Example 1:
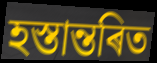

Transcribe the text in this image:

হস্তান্তৰিত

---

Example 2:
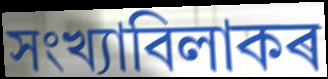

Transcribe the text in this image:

সংখ্যাবিলাকৰ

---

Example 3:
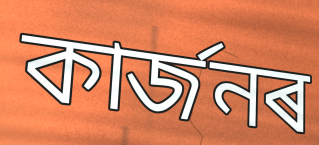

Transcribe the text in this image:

কাৰ্জনৰ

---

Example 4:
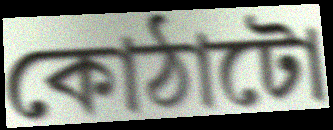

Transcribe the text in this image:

কোঠাটো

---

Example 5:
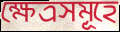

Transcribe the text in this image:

ক্ষেত্ৰসমূহে